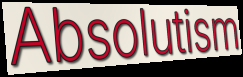
Absolutism